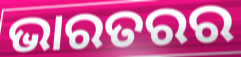
ଭାରତରର